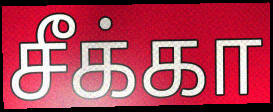
சீக்கா